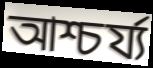
আশ্চৰ্য্য